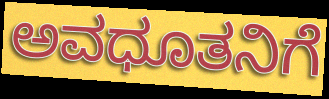
ಅವಧೂತನಿಗೆ